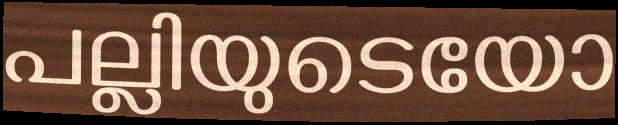
പല്ലിയുടെയോ